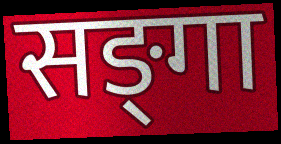
सङ्गा